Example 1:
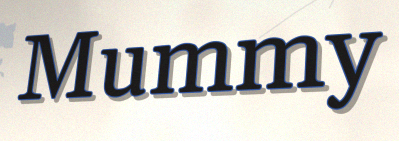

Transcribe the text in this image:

Mummy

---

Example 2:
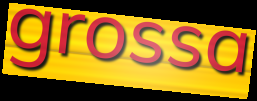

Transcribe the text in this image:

grossa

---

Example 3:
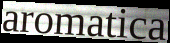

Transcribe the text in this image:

aromatica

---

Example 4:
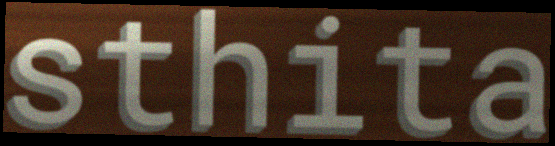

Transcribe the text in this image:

sthita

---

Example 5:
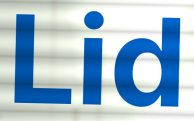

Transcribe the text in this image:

Lid